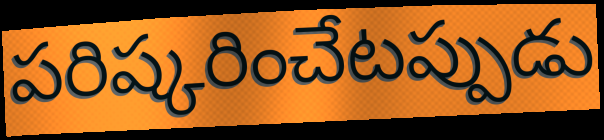
పరిష్కరించేటప్పుడు